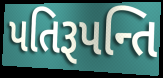
પતિરૂપન્તિ